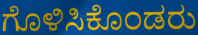
ಗೊಳಿಸಿಕೊಂಡರು